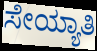
ಸೇಯ್ಯಾತಿ